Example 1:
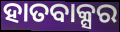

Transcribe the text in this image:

ହାତବାକ୍ସର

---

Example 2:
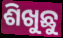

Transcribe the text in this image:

ଶିଖୁଛୁ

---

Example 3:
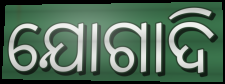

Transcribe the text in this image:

ଯୋଗାଦି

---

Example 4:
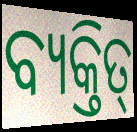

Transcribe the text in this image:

ବ୍ୟକ୍ତିତ୍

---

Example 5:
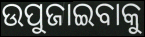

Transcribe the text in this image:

ଉପୁଜାଇବାକୁ